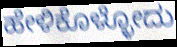
ಹೇಳಿಕೊಳ್ಳೋದು